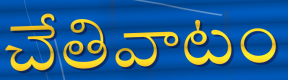
చేతివాటం